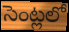
సెంట్లలో